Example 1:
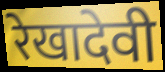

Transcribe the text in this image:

रेखादेवी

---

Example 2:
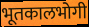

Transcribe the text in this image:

भूतकालभोगी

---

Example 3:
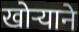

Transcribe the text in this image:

खोऱ्याने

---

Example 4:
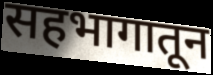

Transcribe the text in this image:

सहभागातून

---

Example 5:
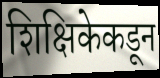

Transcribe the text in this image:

शिक्षिकेकडून